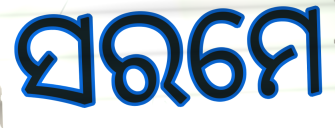
ସରମେ